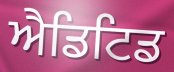
ਐਡਿਟਿਡ